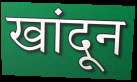
खांदून